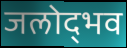
जलोद्भव